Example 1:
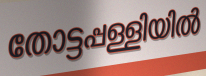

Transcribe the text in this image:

തോട്ടപ്പള്ളിയിൽ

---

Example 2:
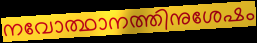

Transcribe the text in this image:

നവോത്ഥാനത്തിനുശേഷം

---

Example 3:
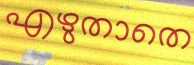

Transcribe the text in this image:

എഴുതാതെ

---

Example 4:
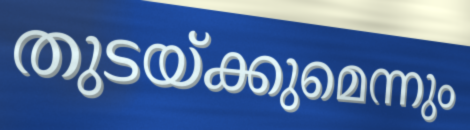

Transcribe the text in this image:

തുടയ്ക്കുമെന്നും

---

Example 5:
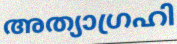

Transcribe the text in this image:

അത്യാഗ്രഹി